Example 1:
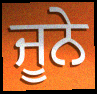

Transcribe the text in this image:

ਜੂਨੇ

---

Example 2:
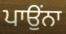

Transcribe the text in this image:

ਪਾਉਂਨਾ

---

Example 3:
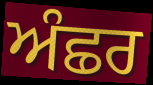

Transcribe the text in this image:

ਅੰਛਰ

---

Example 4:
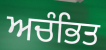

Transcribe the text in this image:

ਅਚੰਭਿਤ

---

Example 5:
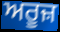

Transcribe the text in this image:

ਅਰੂਜ਼